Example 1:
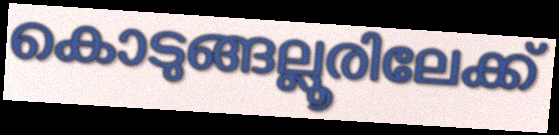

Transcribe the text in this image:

കൊടുങ്ങല്ലൂരിലേക്ക്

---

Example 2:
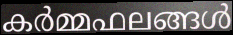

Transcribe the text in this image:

കർമ്മഫലങ്ങൾ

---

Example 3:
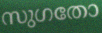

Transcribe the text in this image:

സുഗതോ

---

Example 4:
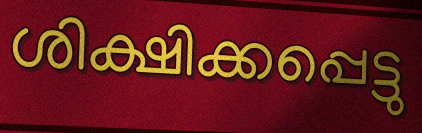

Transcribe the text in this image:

ശിക്ഷിക്കപ്പെട്ടു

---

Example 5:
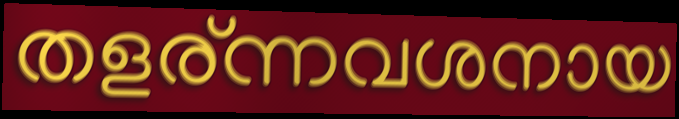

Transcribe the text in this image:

തളര്ന്നവശനായ